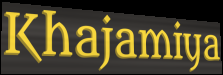
Khajamiya